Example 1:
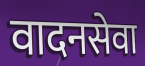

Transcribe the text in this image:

वादनसेवा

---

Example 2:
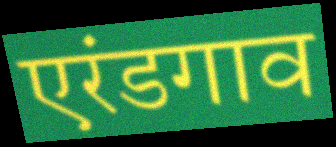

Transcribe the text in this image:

एरंडगाव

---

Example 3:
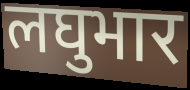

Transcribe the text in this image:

लघुभार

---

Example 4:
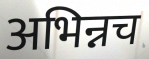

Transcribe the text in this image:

अभिन्नच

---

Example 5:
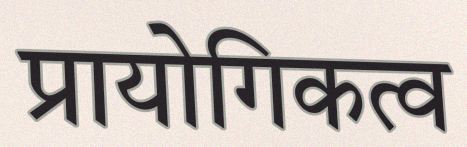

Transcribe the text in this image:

प्रायोगिकत्व